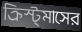
ক্রিস্ট্‌মাসের